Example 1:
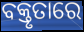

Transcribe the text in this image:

ବକ୍ତୃତାରେ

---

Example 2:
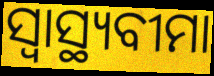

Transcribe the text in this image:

ସ୍ଵାସ୍ଥ୍ୟବୀମା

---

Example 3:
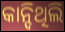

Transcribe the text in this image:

କାନ୍ଦିଥିଲି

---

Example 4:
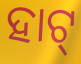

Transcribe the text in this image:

ହାଟ୍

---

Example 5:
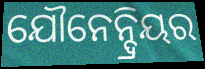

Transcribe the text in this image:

ଯୌନେନ୍ଦ୍ରିୟର